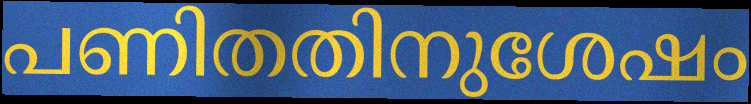
പണിതതിനുശേഷം